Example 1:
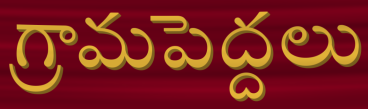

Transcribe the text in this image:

గ్రామపెద్దలు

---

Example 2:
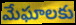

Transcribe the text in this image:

మేఘాలకు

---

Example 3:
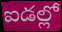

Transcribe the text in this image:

ఐడల్లో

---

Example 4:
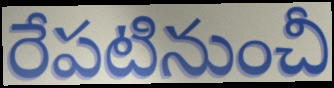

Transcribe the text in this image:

రేపటినుంచీ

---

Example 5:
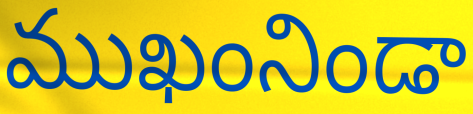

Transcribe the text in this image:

ముఖంనిండా